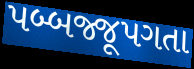
પબ્બજ્જૂપગતા